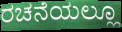
ರಚನೆಯಲ್ಲೂ